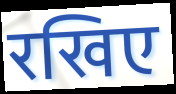
रखिए